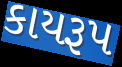
કાયરૂપ